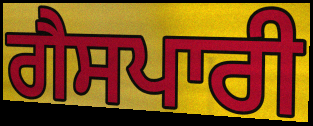
ਗੈਸਪਾਰੀ